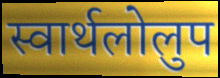
स्वार्थलोलुप